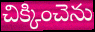
చిక్కించెను